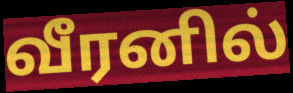
வீரனில்